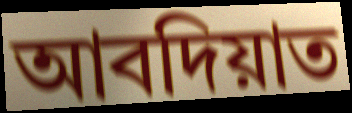
আবদিয়াত